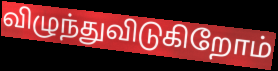
விழுந்துவிடுகிறோம்